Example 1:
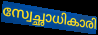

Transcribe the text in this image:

സ്വേച്ഛാധികാരി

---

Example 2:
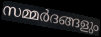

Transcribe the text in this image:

സമ്മർദങ്ങളും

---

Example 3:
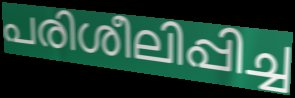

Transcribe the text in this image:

പരിശീലിപ്പിച്ച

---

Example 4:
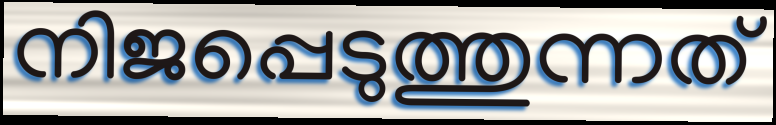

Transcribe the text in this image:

നിജപ്പെടുത്തുന്നത്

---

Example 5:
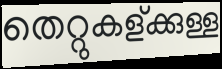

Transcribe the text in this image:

തെറ്റുകള്ക്കുള്ള